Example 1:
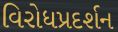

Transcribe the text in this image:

વિરોધપ્રદર્શન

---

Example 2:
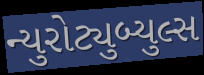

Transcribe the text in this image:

ન્યુરોટ્યુબ્યુલ્સ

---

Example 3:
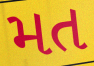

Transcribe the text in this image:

મત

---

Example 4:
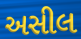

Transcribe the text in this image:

અસીલ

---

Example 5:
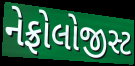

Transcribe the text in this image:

નેફ્રોલોજીસ્ટ